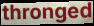
thronged